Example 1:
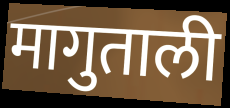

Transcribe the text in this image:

मागुताली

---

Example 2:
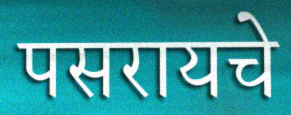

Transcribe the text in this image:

पसरायचे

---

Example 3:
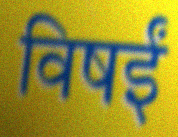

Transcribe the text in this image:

विषईं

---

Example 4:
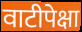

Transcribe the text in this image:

वाटीपेक्षा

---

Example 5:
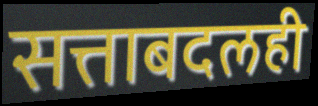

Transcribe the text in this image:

सत्ताबदलही